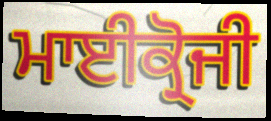
ਮਾਈਕ੍ਰੋਜੀ